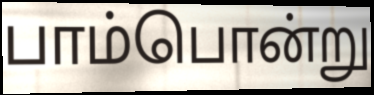
பாம்பொன்று